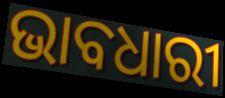
ଭାବଧାରୀ